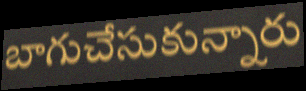
బాగుచేసుకున్నారు